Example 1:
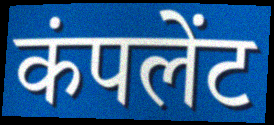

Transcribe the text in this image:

कंपलेंट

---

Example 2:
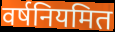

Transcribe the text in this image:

वर्षनियमित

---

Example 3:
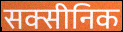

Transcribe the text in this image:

सक्सीनिक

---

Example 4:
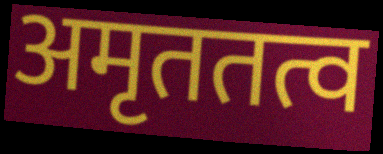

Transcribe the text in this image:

अमृततत्व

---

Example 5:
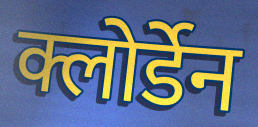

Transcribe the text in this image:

क्लोर्डेन